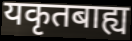
यकृतबाह्य